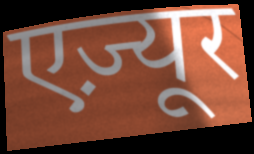
एज़्यूर